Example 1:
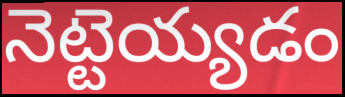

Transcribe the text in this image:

నెట్టెయ్యడం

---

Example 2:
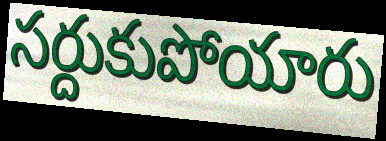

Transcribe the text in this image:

సర్దుకుపోయారు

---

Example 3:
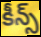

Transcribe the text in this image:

కీన్స్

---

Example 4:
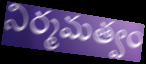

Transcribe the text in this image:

నిర్మమత్వం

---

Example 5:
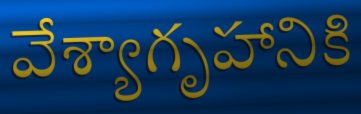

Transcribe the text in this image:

వేశ్యాగృహానికి